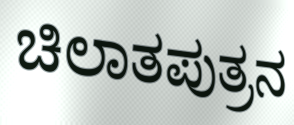
ಚಿಲಾತಪುತ್ರನ